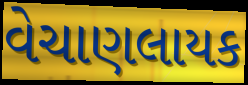
વેચાણલાયક